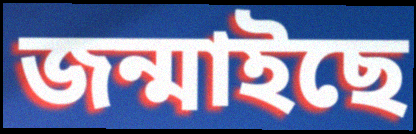
জন্মাইছে